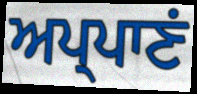
ਅਪ੍ਪਾਣਂ